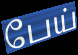
பேய்